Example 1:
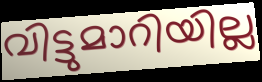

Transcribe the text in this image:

വിട്ടുമാറിയില്ല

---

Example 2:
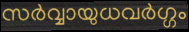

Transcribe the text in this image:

സർവ്വായുധവർഗ്ഗം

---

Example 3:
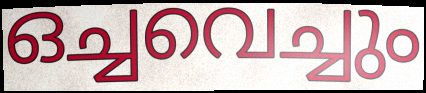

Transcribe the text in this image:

ഒച്ചവെച്ചും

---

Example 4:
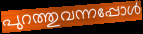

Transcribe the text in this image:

പുറത്തുവന്നപ്പോൾ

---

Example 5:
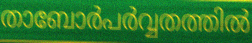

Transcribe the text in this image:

താബോർപർവ്വതത്തിൽ